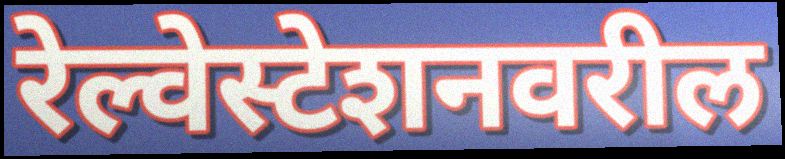
रेल्वेस्टेशनवरील